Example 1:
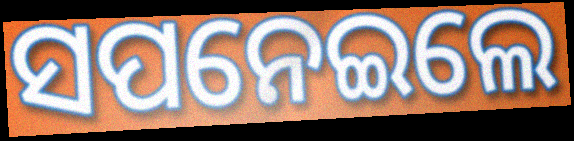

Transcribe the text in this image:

ସପନେଇଲେ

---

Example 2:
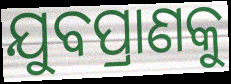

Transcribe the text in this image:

ଯୁବପ୍ରାଣକୁ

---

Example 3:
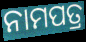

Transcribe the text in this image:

ନାମପତ୍ର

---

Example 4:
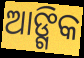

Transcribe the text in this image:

ଆଙ୍ଗିକ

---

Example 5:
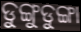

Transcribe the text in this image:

ଡୁଙ୍ଗୁଡୁଙ୍ଗା